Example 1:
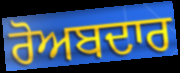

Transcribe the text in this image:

ਰੋਅਬਦਾਰ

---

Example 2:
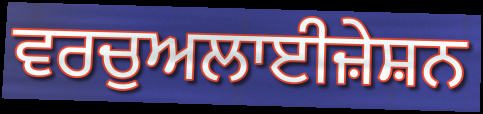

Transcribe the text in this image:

ਵਰਚੁਅਲਾਈਜ਼ੇਸ਼ਨ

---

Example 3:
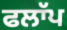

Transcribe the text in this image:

ਫਲਾੱਪ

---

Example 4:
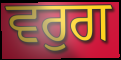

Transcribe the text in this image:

ਵਰੁਗ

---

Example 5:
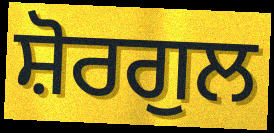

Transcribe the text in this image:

ਸ਼ੋਰਗੁਲ